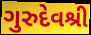
ગુરુદેવશ્રી